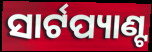
ସାର୍ଟପ୍ୟାଣ୍ଟ